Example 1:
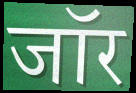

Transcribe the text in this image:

जॉर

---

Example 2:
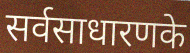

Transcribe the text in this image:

सर्वसाधारणके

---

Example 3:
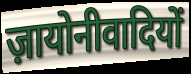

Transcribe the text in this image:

ज़ायोनीवादियों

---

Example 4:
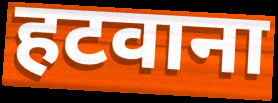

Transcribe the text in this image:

हटवाना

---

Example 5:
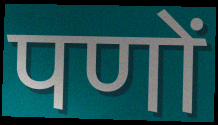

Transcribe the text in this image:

पणों